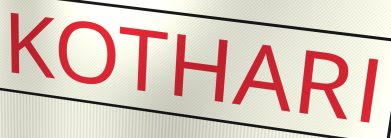
KOTHARI